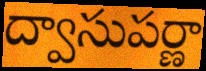
ద్వాసుపర్ణా